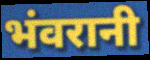
भंवरानी